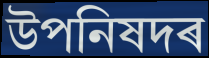
উপনিষদৰ